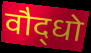
वौद्धो